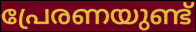
പ്രേരണയുണ്ട്